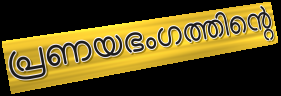
പ്രണയഭംഗത്തിന്റെ